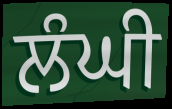
ਲੰਘੀ